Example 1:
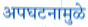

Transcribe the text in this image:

अपघटनामुळे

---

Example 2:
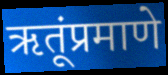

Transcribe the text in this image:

ऋतूंप्रमाणे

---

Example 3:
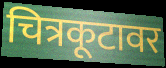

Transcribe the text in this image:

चित्रकूटावर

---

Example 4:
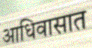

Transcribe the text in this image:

आधिवासात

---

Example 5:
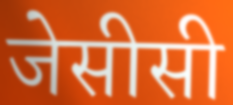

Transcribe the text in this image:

जेसीसी